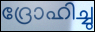
ദ്രോഹിച്ചു